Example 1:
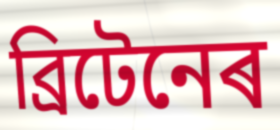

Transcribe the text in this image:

ব্ৰিটেনেৰ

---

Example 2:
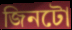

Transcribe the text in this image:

জিনটো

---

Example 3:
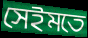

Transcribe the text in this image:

সেইমতে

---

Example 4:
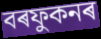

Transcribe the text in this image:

বৰফুকনৰ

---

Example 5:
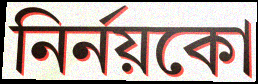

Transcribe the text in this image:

নিৰ্নয়কো